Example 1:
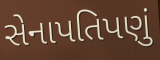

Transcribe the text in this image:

સેનાપતિપણું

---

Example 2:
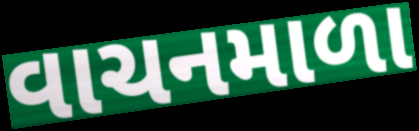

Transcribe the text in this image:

વાચનમાળા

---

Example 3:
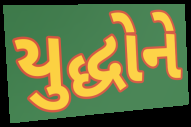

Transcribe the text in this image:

યુદ્ધોને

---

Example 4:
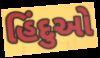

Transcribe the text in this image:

હિંદુઓ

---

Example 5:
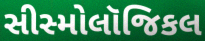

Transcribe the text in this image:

સીસ્મોલૉજિકલ